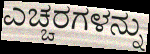
ಎಚ್ಚರಗಳನ್ನು